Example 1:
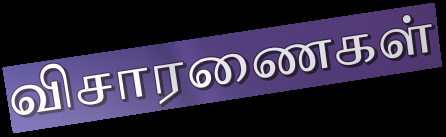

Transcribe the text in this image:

விசாரணைகள்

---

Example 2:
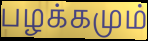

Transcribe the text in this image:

பழக்கமும்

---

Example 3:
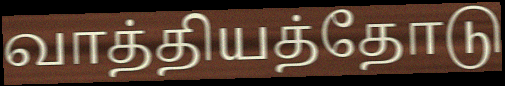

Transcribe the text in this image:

வாத்தியத்தோடு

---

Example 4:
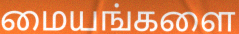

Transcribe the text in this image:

மையங்களை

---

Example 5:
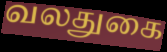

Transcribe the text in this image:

வலதுகை